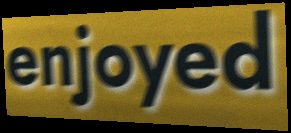
enjoyed